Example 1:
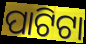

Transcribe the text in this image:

ପାଟିଟା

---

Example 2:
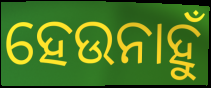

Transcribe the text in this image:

ହେଉନାହୁଁ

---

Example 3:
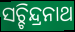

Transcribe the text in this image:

ସଚ୍ଚିନ୍ଦ୍ରନାଥ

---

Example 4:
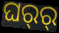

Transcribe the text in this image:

ଘର୍‍ର୍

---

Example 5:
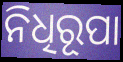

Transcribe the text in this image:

ନିଧିରୂପା